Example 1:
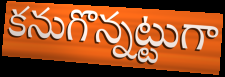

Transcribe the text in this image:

కనుగొన్నట్టుగా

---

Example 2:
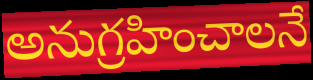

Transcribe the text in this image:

అనుగ్రహించాలనే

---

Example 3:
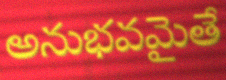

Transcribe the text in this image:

అనుభవమైతే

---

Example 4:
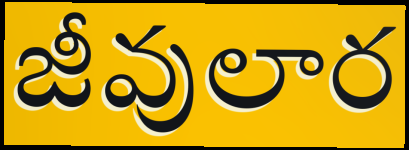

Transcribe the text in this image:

జీవులార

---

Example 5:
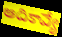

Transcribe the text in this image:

ఆదికావ్యే